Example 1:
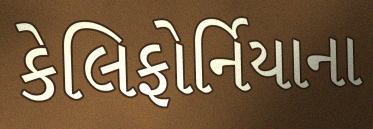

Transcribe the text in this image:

કેલિફોર્નિયાના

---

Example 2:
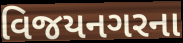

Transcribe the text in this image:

વિજયનગરના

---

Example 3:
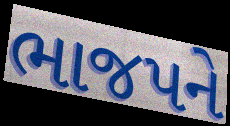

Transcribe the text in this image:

ભાજપને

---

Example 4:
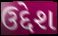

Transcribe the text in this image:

ઉદ્દેશ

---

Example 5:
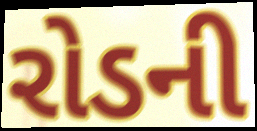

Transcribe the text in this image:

રોડની